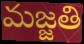
మజ్జతి